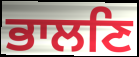
ਭਾਲਣਿ